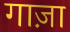
गाज़ा